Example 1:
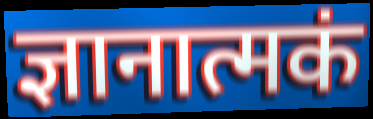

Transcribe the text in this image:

ज्ञानात्मकं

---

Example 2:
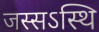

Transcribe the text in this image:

जस्सऽस्थि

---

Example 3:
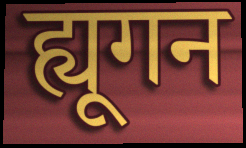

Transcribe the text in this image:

ह्यूगन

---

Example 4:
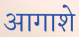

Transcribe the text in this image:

आगाशे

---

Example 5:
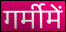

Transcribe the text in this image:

गर्मीमें